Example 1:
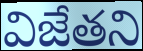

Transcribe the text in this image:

విజేతని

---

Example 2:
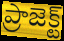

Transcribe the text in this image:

ప్రాజెక్ట్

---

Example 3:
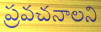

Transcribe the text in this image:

ప్రవచనాలని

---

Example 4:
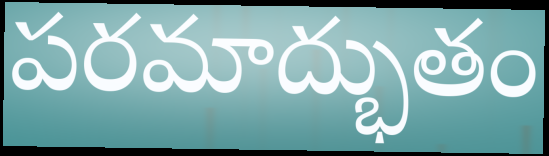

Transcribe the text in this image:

పరమాద్భుతం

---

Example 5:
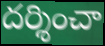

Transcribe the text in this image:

దర్శించా